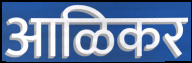
आळिकर